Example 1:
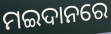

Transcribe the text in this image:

ମଇଦାନରେ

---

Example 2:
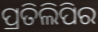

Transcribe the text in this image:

ପ୍ରତିଲିପିର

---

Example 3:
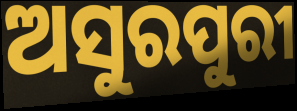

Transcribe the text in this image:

ଅସୁରପୁରୀ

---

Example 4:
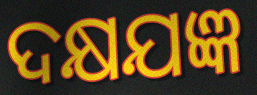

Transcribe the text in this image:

ଦକ୍ଷଯଜ୍ଞ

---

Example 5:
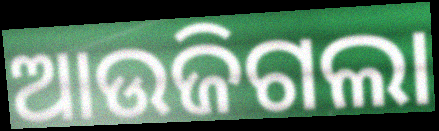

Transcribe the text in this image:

ଆଉଜିଗଲା